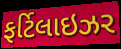
ફર્ટિલાઇઝર